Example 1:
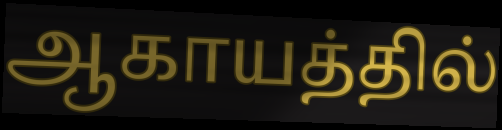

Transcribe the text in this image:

ஆகாயத்தில்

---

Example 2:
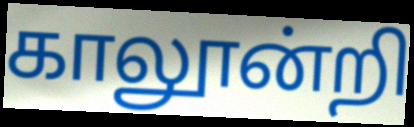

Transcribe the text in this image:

காலூன்றி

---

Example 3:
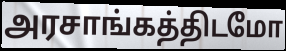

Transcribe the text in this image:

அரசாங்கத்திடமோ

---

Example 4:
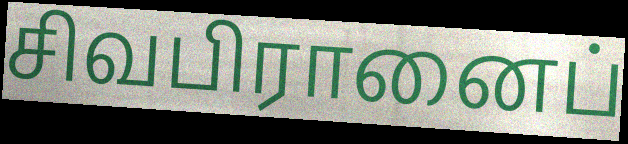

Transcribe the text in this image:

சிவபிரானைப்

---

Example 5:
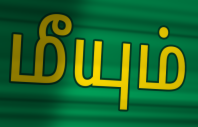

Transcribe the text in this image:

மீயும்